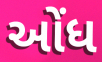
ઓંધ